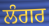
ਲੰਗਰ